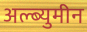
अल्ब्युमीन